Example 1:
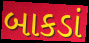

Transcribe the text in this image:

બાકડાં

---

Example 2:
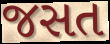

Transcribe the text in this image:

જસત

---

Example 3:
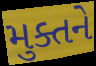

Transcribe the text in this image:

મુક્તને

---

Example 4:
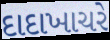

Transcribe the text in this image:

દાદાખાચરે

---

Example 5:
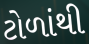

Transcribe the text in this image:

ટોળાંથી